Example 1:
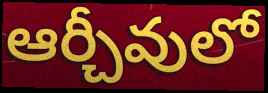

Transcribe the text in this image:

ఆర్చీవులో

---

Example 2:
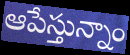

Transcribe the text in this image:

ఆపేస్తున్నాం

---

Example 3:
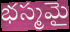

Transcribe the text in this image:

భస్మమై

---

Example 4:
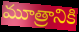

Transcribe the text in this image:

మూత్రానికి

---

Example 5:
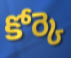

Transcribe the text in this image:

కోర్కె